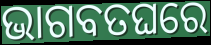
ଭାଗବତଘରେ